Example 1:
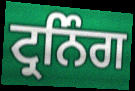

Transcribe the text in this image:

ਟ੍ਰਨਿੰਗ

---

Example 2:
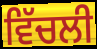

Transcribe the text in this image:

ਵਿੱਚਲੀ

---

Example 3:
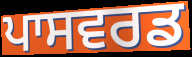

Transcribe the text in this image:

ਪਾਸਵਰਡ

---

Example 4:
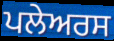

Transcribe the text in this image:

ਪਲੇਅਰਸ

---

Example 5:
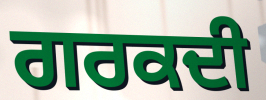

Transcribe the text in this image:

ਗਰਕਦੀ